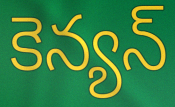
కెన్యన్